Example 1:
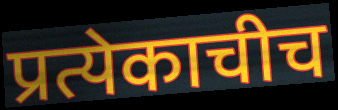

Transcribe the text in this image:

प्रत्येकाचीच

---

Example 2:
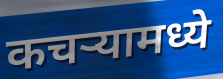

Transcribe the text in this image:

कचऱ्यामध्ये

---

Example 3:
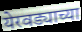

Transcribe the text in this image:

येरवड्याच्या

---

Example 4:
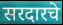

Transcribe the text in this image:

सरदारचे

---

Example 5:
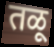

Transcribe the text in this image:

तळू